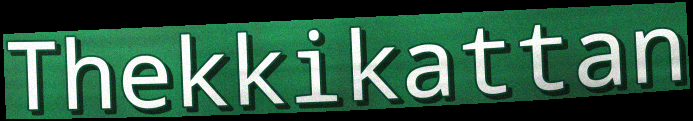
Thekkikattan